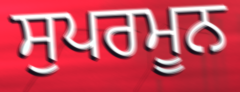
ਸੁਪਰਮੂਨ